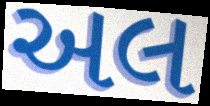
અલ